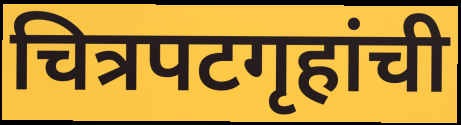
चित्रपटगृहांची